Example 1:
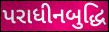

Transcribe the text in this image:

પરાધીનબુદ્ધિ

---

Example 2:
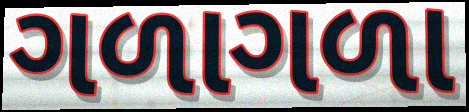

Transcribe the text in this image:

ગળાગળા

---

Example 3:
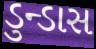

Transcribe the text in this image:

ડુન્ડાસ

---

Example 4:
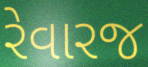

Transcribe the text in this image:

રેવારજ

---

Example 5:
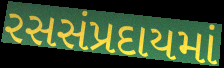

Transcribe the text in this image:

રસસંપ્રદાયમાં